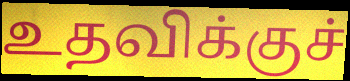
உதவிக்குச்